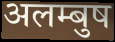
अलम्बुष